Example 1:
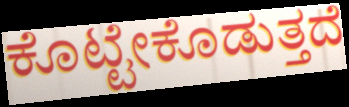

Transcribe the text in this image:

ಕೊಟ್ಟೇಕೊಡುತ್ತದೆ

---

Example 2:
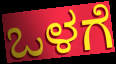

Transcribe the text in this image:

ಒಳಗೆ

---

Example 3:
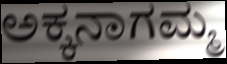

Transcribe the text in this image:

ಅಕ್ಕನಾಗಮ್ಮ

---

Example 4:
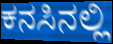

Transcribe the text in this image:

ಕನಸಿನಲ್ಲಿ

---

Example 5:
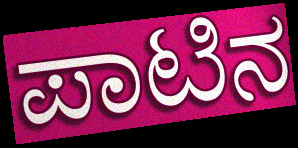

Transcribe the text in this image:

ಪಾಟಿನ